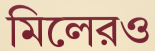
মিলেরও